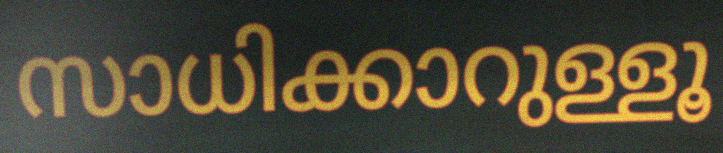
സാധിക്കാറുള്ളൂ